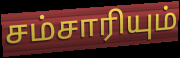
சம்சாரியும்